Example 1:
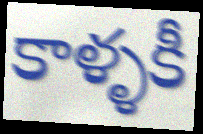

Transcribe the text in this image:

కాళ్ళకీ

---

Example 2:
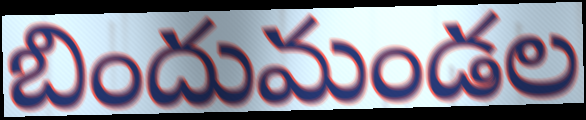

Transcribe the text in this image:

బిందుమండల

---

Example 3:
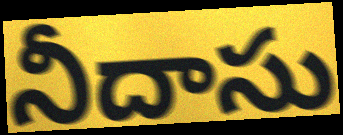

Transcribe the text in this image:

నీదాసు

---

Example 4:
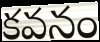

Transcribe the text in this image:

కవనం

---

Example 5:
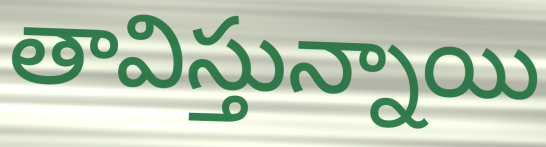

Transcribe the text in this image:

తావిస్తున్నాయి